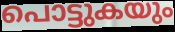
പൊട്ടുകയും